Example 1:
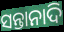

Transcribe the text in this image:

ସନ୍ତାନାଦି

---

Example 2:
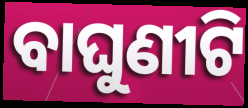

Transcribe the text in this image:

ବାଘୁଣୀଟି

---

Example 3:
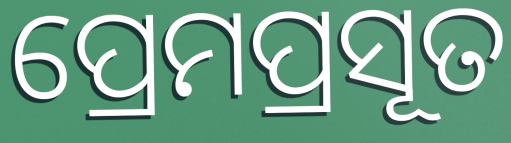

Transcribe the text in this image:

ପ୍ରେମପ୍ରସୂତ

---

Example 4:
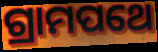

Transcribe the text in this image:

ଗ୍ରାମପଥେ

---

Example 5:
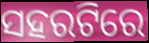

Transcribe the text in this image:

ସହରଟିରେ